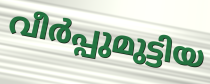
വീർപ്പുമുട്ടിയ